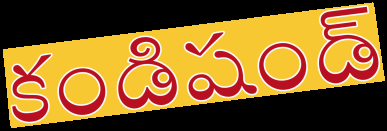
కండిషండ్